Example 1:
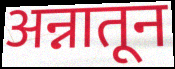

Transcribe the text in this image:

अन्नातून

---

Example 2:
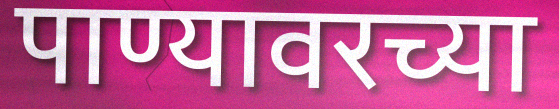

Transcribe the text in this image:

पाण्यावरच्या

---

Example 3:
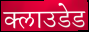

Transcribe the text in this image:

क्लाउडेड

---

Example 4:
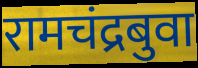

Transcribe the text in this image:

रामचंद्रबुवा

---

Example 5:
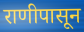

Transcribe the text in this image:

राणीपासून